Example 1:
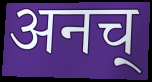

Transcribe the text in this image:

अनच्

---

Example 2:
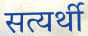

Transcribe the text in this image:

सत्यर्थी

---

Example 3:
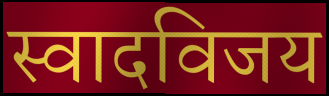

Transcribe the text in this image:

स्वादविजय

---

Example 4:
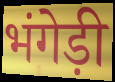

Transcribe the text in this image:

भंगेड़ी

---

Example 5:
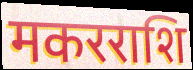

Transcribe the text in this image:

मकरराशि